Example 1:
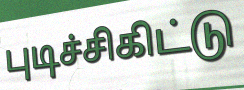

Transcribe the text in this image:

புடிச்சிகிட்டு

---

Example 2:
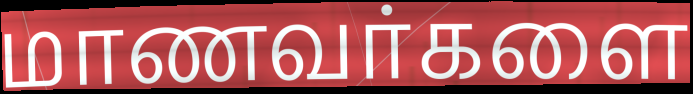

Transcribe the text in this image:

மாணவர்களை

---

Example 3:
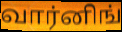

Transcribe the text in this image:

வார்னிங்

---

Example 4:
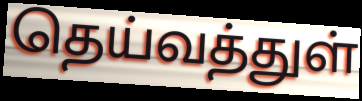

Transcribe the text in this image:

தெய்வத்துள்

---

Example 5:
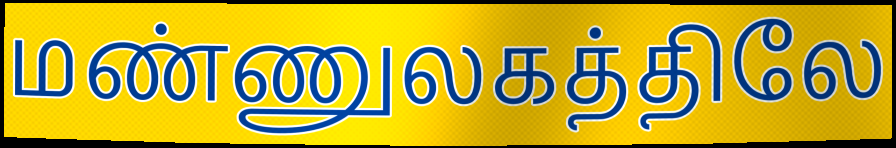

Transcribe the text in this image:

மண்ணுலகத்திலே